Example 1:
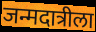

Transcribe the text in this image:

जन्मदात्रीला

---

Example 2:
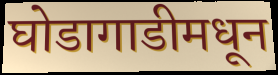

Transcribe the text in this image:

घोडागाडीमधून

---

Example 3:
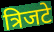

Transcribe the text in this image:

त्रिजटे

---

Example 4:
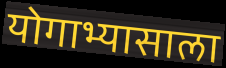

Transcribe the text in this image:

योगाभ्यासाला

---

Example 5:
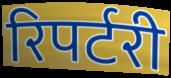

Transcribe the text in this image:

रिपर्टरी